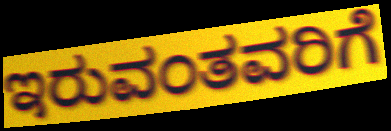
ಇರುವಂತವರಿಗೆ